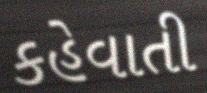
કહેવાતી